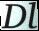
Dl